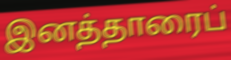
இனத்தாரைப்